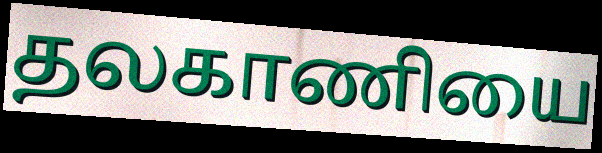
தலகாணியை